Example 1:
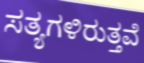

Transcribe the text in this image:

ಸತ್ಯಗಳಿರುತ್ತವೆ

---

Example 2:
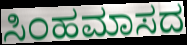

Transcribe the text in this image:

ಸಿಂಹಮಾಸದ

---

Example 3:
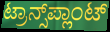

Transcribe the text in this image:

ಟ್ರಾನ್ಸ್‌ಪ್ಲಾಂಟ್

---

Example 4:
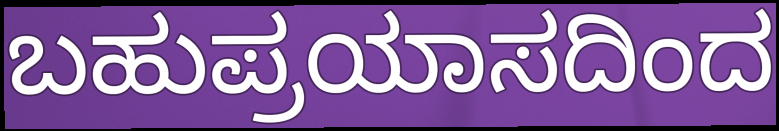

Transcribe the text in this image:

ಬಹುಪ್ರಯಾಸದಿಂದ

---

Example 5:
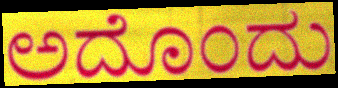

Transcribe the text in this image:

ಅದೊಂದು